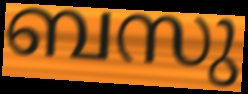
ബസു